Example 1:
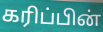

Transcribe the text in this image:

கரிப்பின்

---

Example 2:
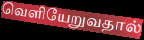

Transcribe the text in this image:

வெளியேறுவதால்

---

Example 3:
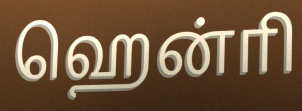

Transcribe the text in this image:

ஹென்ரி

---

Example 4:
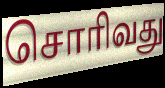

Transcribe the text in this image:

சொரிவது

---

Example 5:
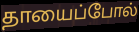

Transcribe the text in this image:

தாயைப்போல்